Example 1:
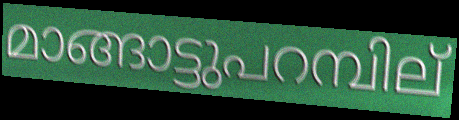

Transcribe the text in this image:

മാങ്ങാട്ടുപറമ്പില്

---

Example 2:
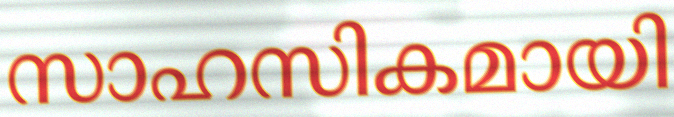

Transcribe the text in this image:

സാഹസികമായി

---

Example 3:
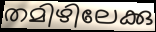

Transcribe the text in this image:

തമിഴിലേക്കു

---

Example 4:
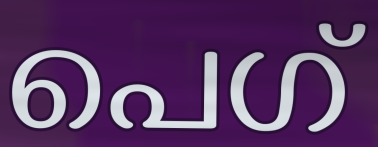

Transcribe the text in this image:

പെഗ്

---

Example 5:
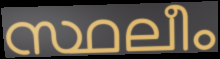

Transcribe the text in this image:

സ്ഥലീം